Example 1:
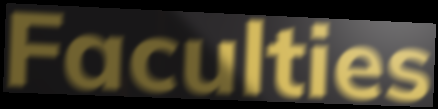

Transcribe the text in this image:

Faculties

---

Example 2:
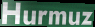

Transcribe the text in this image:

Hurmuz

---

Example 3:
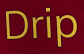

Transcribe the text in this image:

Drip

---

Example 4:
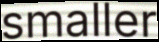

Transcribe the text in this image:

smaller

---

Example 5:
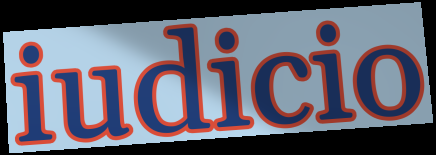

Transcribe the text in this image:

iudicio